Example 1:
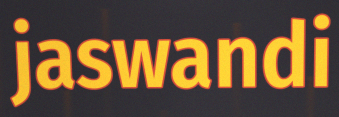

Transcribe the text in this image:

jaswandi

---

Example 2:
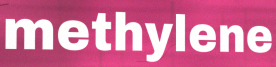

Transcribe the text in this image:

methylene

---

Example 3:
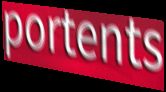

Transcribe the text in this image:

portents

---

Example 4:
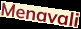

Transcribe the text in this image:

Menavali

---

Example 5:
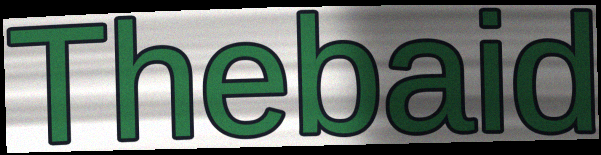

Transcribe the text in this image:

Thebaid